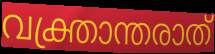
വക്ത്രാന്തരാത്